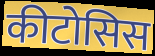
कीटोसिस